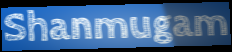
Shanmugam